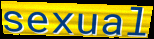
sexual